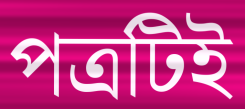
পত্রটিই